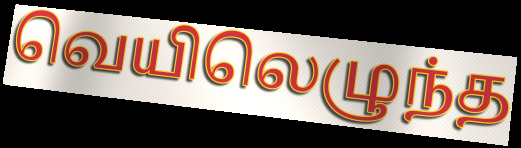
வெயிலெழுந்த